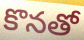
కొనతో